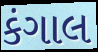
કંગાલ